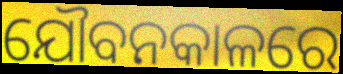
ଯୌବନକାଳରେ